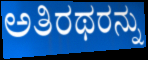
ಅತಿರಥರನ್ನು